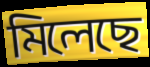
মিলেছে